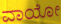
ವಾಯೋ